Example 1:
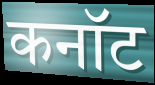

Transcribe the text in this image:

कनॉट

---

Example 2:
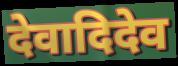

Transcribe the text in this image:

देवादिदेव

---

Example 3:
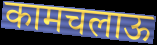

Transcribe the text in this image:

कामचलाऊ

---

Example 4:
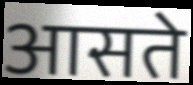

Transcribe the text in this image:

आसते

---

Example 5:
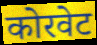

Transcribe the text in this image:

कोरवेट